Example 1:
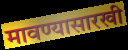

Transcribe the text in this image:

मावण्यासारखी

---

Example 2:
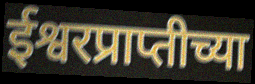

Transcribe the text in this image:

ईश्वरप्राप्तीच्या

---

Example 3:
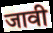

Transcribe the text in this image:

जावी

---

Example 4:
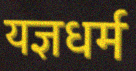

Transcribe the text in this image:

यज्ञधर्म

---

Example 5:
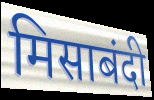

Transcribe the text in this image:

मिसाबंदी